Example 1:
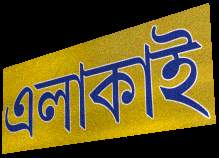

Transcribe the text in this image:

এলাকাই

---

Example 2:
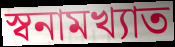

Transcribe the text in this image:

স্বনামখ্যাত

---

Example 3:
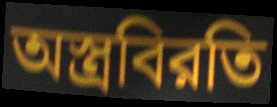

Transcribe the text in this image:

অস্ত্রবিরতি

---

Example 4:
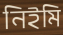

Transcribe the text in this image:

নিইমি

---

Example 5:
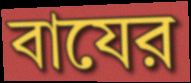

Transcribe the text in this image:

বাযের